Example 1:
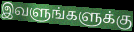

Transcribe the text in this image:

இவளுங்களுக்கு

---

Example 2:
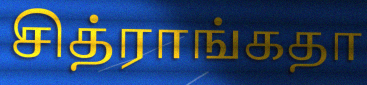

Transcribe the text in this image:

சித்ராங்கதா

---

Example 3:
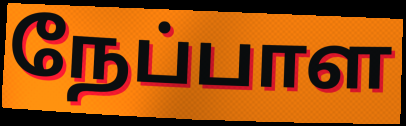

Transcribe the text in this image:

நேப்பாள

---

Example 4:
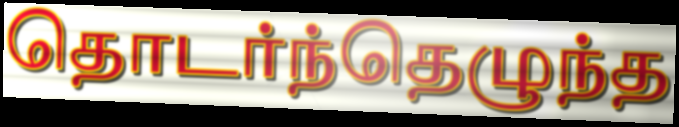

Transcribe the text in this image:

தொடர்ந்தெழுந்த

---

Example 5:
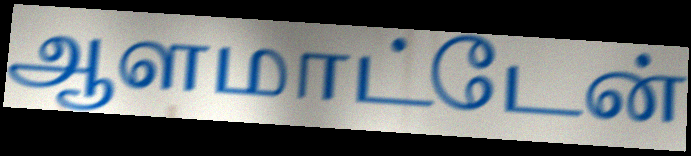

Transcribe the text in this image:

ஆளமாட்டேன்